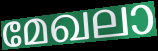
മേഖലാ